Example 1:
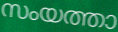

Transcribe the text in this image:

സംയത്താ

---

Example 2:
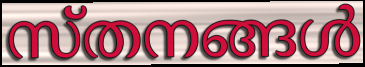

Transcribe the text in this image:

സ്തനങ്ങൾ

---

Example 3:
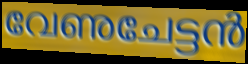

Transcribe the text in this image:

വേണുചേട്ടൻ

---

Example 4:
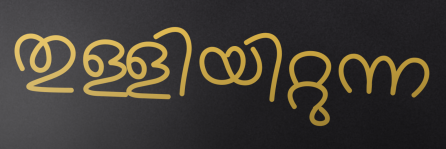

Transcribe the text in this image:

തുള്ളിയിറ്റുന്ന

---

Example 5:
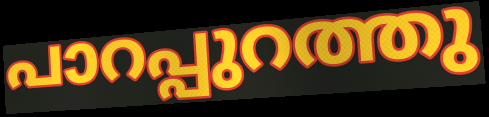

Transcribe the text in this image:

പാറപ്പുറത്തു